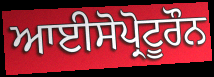
ਆਈਸੋਪ੍ਰੋਟੂਰੌਨ